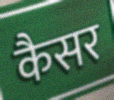
कैसर